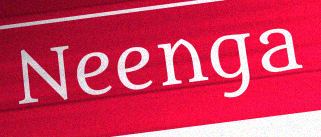
Neenga